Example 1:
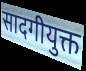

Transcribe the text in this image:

सादगीयुक्त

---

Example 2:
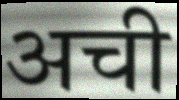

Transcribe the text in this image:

अची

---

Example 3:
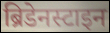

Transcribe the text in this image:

ब्रिडेनस्टाइन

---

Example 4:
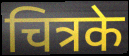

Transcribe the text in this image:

चित्रके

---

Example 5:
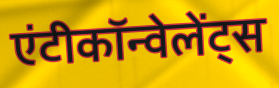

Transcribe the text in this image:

एंटीकॉन्वेलेंट्स